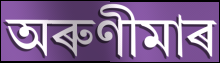
অৰুণীমাৰ